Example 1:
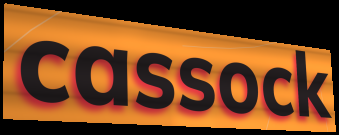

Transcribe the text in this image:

cassock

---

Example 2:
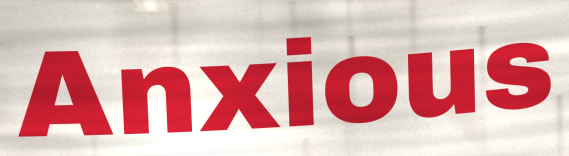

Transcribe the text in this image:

Anxious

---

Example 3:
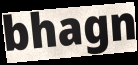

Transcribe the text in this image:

bhagn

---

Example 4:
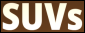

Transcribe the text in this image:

SUVs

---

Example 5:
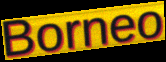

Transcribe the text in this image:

Borneo